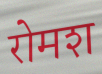
रोमश